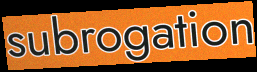
subrogation